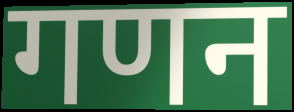
गणन